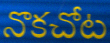
నొకచోట